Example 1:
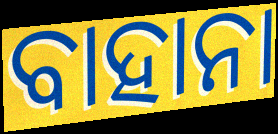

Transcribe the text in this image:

ବାହାନା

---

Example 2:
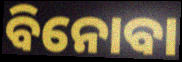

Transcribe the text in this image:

ବିନୋବା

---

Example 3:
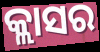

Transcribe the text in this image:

କ୍ଲାସର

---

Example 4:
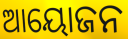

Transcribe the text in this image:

ଆୟୋଜନ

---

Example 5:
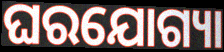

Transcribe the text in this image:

ଘରଯୋଗ୍ୟା